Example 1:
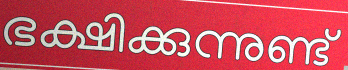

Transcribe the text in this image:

ഭക്ഷിക്കുന്നുണ്ട്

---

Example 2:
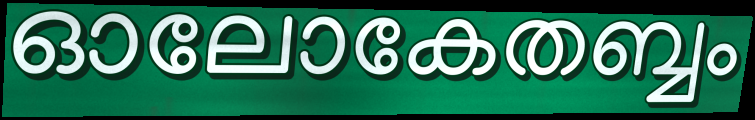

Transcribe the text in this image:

ഓലോകേതബ്ബം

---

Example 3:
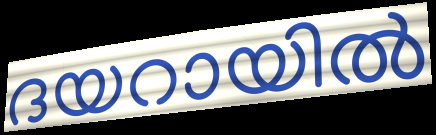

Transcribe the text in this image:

ദയറായിൽ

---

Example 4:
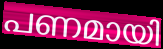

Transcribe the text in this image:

പണമായി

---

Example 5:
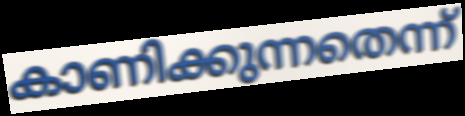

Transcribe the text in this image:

കാണിക്കുന്നതെന്ന്